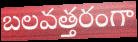
బలవత్తరంగా